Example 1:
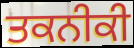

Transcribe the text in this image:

ਤਕਨੀਕੀ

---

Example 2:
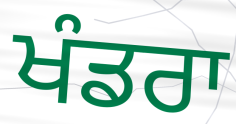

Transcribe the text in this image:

ਖੰਡਰਾ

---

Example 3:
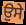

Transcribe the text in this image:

ਉਸੇ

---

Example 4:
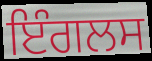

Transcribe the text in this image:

ਇੰਗਲਸ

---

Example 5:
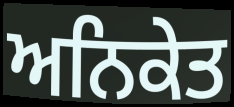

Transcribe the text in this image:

ਅਨਿਕੇਤ